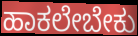
ಹಾಕಲೇಬೇಕು